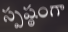
స్పష్ఠంగా